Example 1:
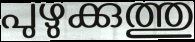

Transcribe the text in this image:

പുഴുക്കുത്തു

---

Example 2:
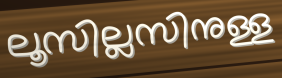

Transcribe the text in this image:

ലൂസില്ലസിനുള്ള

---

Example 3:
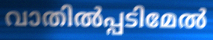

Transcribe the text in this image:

വാതിൽപ്പടിമേൽ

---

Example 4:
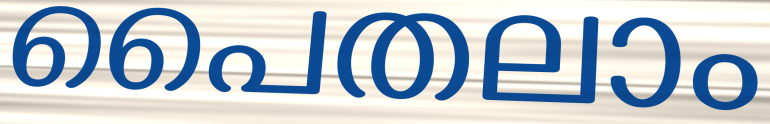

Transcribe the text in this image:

പൈതലാം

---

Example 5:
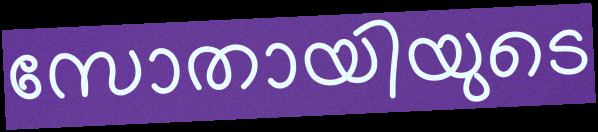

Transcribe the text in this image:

സോതായിയുടെ